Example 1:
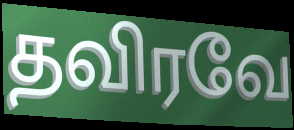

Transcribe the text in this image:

தவிரவே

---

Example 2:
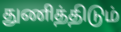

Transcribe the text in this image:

துணித்திடும்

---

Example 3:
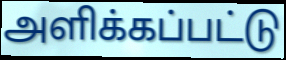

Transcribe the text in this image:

அளிக்கப்பட்டு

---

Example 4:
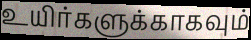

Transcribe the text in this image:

உயிர்களுக்காகவும்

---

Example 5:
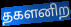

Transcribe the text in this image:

தகளனிற